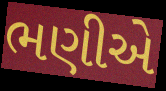
ભણીએ